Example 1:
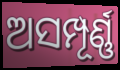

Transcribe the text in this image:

ଅସମ୍ପୂର୍ଣ୍ଣ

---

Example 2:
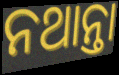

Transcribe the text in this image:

ନଥାନ୍ତା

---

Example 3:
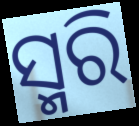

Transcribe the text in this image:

ସ୍ମରି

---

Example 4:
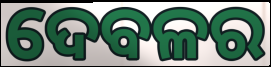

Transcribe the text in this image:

ଦେବଳର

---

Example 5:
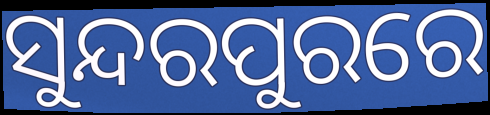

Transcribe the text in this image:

ସୁନ୍ଦରପୁରରେ